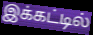
இக்கட்டில்